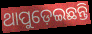
ଥାପୁଡ଼େଇଛନ୍ତି